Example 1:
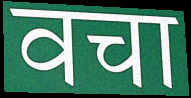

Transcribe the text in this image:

वचा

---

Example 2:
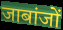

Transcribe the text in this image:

जाबांजों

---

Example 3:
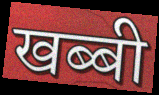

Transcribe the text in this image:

खब्बी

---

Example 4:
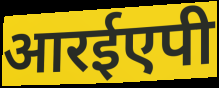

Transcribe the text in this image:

आरईएपी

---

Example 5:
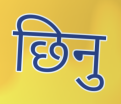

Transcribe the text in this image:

छिनु